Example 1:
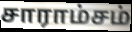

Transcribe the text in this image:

சாராம்சம்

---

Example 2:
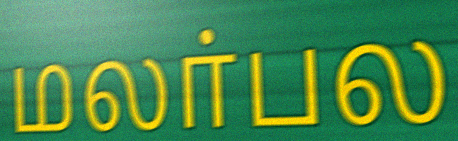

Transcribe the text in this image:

மலர்பல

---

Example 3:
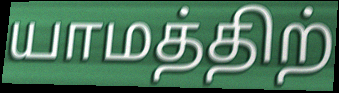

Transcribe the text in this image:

யாமத்திற்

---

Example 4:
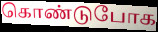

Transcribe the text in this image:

கொண்டுபோக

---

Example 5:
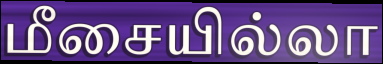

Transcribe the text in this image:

மீசையில்லா